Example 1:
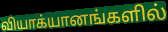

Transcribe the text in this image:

வியாக்யானங்களில்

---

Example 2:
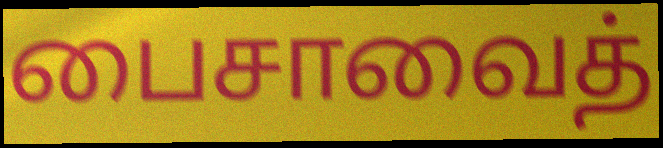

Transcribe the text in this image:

பைசாவைத்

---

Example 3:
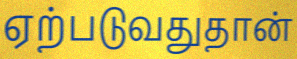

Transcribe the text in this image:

ஏற்படுவதுதான்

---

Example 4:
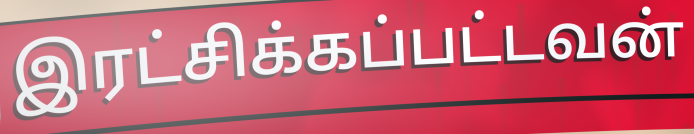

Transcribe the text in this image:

இரட்சிக்கப்பட்டவன்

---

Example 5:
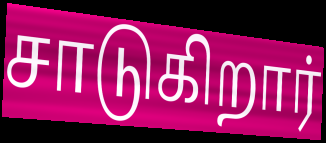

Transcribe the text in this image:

சாடுகிறார்